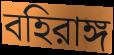
বহিরাঙ্গ